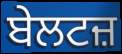
ਬੇਲਟਜ਼